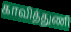
காவித்துணி